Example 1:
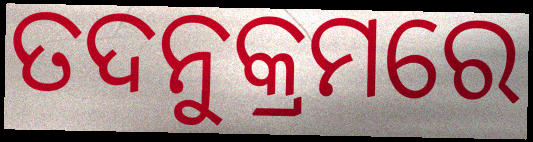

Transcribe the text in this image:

ତଦନୁକ୍ରମରେ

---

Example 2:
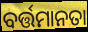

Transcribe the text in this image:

ବର୍ତ୍ତମାନତା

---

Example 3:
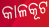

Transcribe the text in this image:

କାଳକୂଟ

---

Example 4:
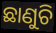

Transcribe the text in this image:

ଛାଣୁଚି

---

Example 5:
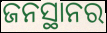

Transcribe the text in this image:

ଜନସ୍ଥାନର